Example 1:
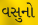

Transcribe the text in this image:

વસુનો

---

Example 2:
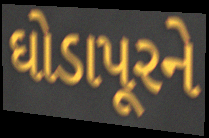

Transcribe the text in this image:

ઘોડાપૂરને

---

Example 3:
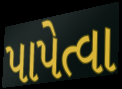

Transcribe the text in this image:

પાપેત્વા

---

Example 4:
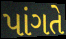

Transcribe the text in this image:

પાંગતે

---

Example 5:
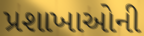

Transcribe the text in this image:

પ્રશાખાઓની